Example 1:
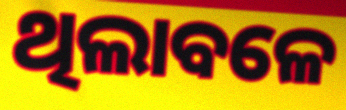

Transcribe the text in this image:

ଥିଲାବଳେ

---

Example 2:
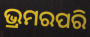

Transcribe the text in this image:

ଭ୍ରମରପରି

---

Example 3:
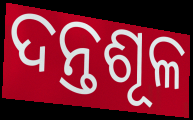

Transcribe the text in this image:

ଦନ୍ତଶୂଳ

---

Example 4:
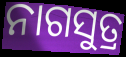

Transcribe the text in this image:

ନାଗସୁତ୍ର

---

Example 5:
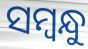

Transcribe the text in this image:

ସମ୍ବନ୍ଧୁ